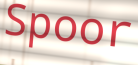
Spoor